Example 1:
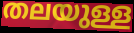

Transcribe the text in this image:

തലയുള്ള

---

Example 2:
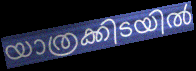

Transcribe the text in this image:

യാത്രക്കിടയിൽ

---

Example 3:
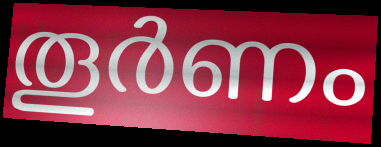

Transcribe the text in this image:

തൂർണം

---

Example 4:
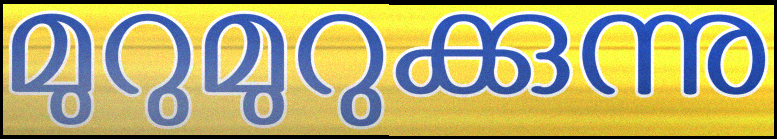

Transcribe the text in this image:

മുറുമുറുക്കുന്നു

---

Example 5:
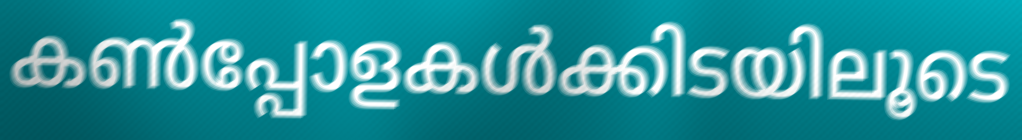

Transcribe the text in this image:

കൺപ്പോളകൾക്കിടയിലൂടെ